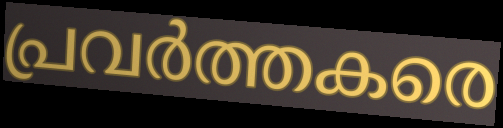
പ്രവർത്തകരെ